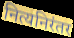
नित्यनिरंतर